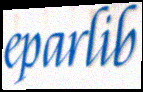
eparlib